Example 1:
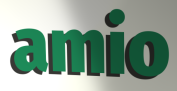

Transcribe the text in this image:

amio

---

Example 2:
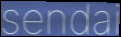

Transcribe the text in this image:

sendai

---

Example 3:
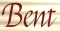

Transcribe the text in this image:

Bent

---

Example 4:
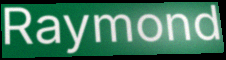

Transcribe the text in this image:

Raymond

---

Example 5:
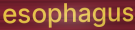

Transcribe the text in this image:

esophagus